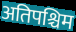
अतिपश्चिम